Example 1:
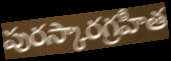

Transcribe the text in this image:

పురస్కారగ్రహీత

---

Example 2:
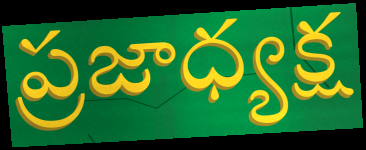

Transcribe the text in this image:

ప్రజాధ్యక్ష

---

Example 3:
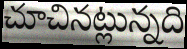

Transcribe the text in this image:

చూచినట్లున్నది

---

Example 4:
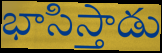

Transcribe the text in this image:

భాసిస్తాడు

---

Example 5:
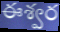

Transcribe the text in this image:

ఈశ్వర